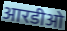
आरडीओ